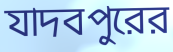
যাদবপুরের